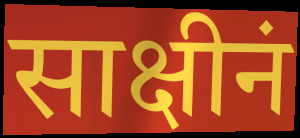
साक्षीनं